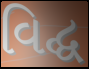
વિદ્ઘ